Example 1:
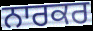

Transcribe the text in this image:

ਨਾਰਕਰ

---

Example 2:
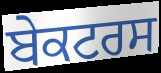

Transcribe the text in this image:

ਬੇਕਟਰਸ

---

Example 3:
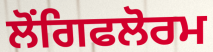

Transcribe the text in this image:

ਲੋਂਗਿਫਲੋਰਮ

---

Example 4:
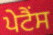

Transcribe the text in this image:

ਪੇਟੈਂਸ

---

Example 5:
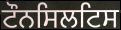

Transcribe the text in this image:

ਟੌਨਸਿਲਟਿਸ